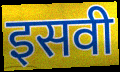
इसवी